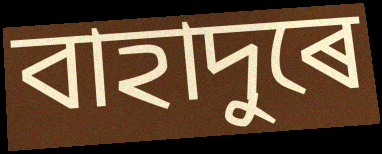
বাহাদুৰে